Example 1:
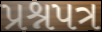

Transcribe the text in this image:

પ્રશ્નપત્ર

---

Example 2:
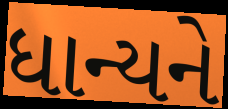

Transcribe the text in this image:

ધાન્યને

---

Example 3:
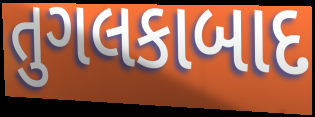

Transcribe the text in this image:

તુગલકાબાદ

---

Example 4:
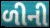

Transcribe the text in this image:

ળીની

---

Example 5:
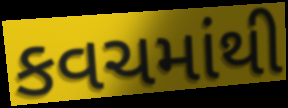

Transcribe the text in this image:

કવચમાંથી